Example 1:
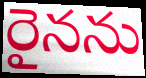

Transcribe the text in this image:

రైనను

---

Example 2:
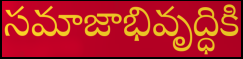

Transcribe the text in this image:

సమాజాభివృద్ధికి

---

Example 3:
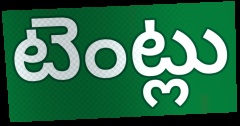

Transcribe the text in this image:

టెంట్లు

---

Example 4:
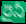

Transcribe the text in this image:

రైనీ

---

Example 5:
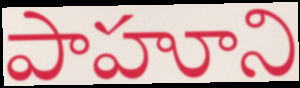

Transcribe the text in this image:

పాహూని